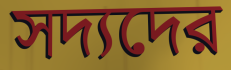
সদ্যদের